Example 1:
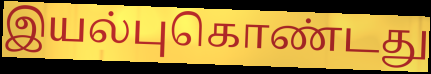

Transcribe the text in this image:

இயல்புகொண்டது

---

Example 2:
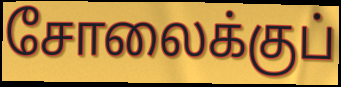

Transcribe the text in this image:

சோலைக்குப்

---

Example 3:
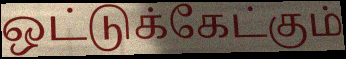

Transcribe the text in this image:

ஒட்டுக்கேட்கும்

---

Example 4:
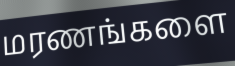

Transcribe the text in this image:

மரணங்களை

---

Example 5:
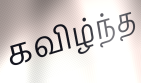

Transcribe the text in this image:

கவிழ்ந்த